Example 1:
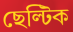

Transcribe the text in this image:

ছেল্টিক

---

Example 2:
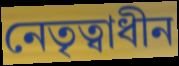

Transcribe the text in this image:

নেতৃত্বাধীন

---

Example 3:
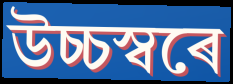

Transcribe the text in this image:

উচ্চস্বৰে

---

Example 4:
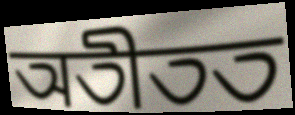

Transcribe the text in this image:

অতীতত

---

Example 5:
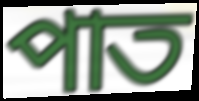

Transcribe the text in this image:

পাত